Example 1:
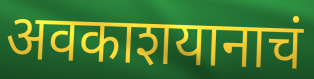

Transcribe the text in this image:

अवकाशयानाचं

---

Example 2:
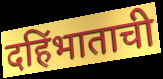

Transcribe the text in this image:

दहिंभाताची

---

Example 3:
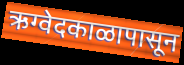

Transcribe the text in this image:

ऋग्वेदकाळापासून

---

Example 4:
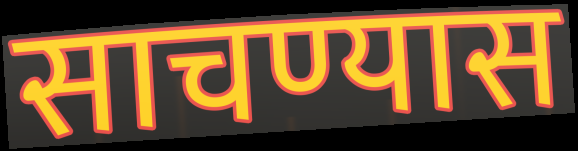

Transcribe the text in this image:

साचण्यास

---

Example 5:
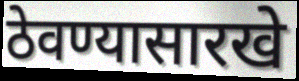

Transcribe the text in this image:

ठेवण्यासारखे